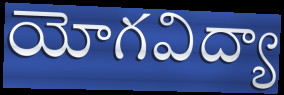
యోగవిద్యా